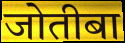
जोतीबा